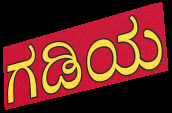
ಗಡಿಯ